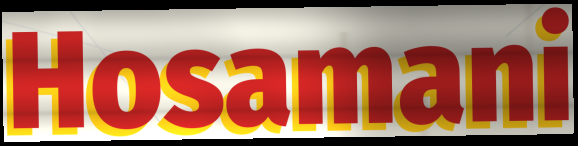
Hosamani